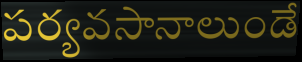
పర్యవసానాలుండే